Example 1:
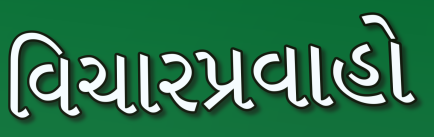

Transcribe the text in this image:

વિચારપ્રવાહો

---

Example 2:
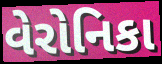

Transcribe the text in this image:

વેરોનિકા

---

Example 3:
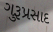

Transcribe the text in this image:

ગુરૂપ્રસાદ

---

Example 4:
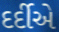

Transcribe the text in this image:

દર્દીએ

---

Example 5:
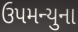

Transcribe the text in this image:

ઉપમન્યુના